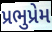
પ્રભુપ્રેમ